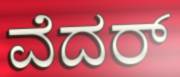
ವೆದರ್